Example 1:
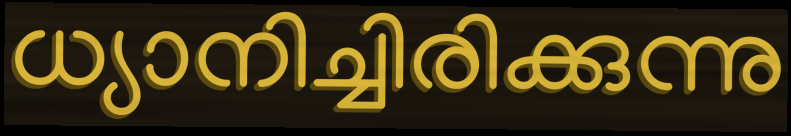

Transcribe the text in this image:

ധ്യാനിച്ചിരിക്കുന്നു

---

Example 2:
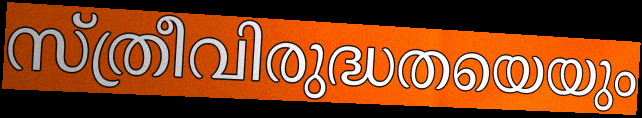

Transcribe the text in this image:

സ്ത്രീവിരുദ്ധതയെയും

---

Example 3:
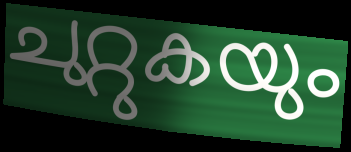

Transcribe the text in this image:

ചുറ്റുകയും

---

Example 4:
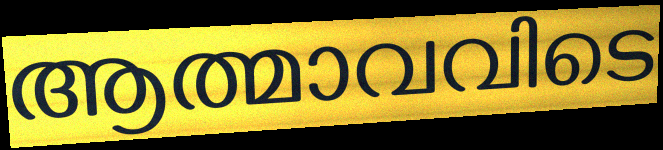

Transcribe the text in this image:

ആത്മാവവിടെ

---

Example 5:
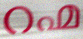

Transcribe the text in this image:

റഹ്മ